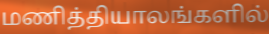
மணித்தியாலங்களில்